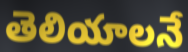
తెలియాలనే